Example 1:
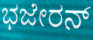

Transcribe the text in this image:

ಭಜೇರನ್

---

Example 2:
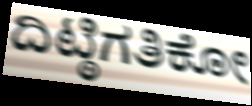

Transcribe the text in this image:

ದಿಟ್ಠಿಗತಿಕೋ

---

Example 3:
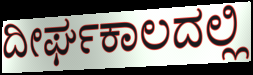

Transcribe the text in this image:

ದೀರ್ಘಕಾಲದಲ್ಲಿ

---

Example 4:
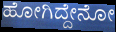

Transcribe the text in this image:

ಹೋಗಿದ್ದೇನೋ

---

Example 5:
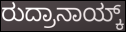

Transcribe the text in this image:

ರುದ್ರಾನಾಯ್ಕ್